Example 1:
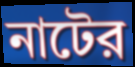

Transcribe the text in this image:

নাটের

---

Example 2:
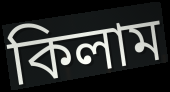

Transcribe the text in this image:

কিলাম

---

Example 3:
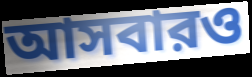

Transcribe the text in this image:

আসবারও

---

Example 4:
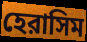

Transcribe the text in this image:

হেরাসিম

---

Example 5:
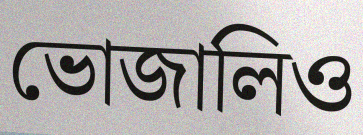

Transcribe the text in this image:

ভোজালিও